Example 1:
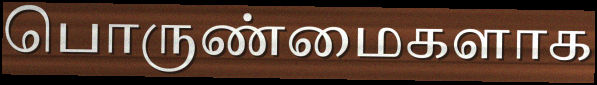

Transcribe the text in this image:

பொருண்மைகளாக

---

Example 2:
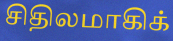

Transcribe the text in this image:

சிதிலமாகிக்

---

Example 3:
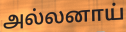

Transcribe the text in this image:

அல்லனாய்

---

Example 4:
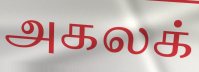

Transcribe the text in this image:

அகலக்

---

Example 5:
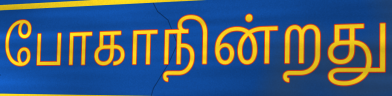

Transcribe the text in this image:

போகாநின்றது